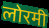
लोरमी